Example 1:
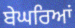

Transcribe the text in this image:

ਬੇਘਰਿਆਂ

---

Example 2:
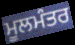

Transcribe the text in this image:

ਮੂਲਮੰਤਰ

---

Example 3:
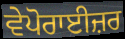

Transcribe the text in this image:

ਵੇਪੋਰਾਈਜ਼ਰ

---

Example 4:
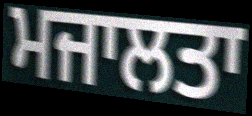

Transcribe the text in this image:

ਮਜਾਲਤਾ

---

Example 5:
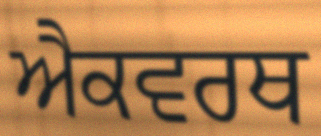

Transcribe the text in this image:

ਐਕਵਰਥ